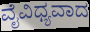
ವೈವಿಧ್ಯವಾದ